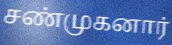
சண்முகனார்